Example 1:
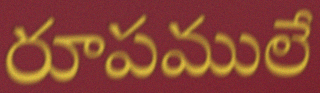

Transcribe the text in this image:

రూపములే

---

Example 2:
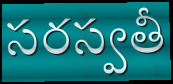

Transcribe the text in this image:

సరస్వతీ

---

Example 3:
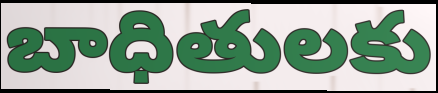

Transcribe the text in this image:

బాధితులకు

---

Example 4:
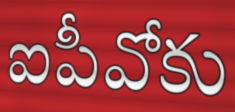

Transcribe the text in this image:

ఐపీవోకు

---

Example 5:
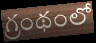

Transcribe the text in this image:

గ్రంథంలో